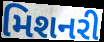
મિશનરી